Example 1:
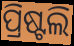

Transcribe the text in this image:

ପ୍ରିଷ୍ଟଲି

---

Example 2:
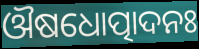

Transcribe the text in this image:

ଔଷଧୋତ୍ପାଦନଃ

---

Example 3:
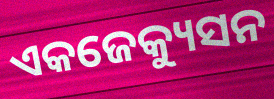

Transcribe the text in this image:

ଏକଜେକ୍ୟୁସନ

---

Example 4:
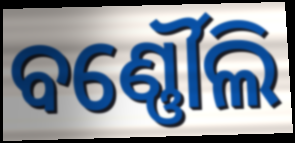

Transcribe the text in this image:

ବର୍ଣ୍ଣୌଲି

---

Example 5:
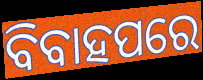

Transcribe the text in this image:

ବିବାହପରେ